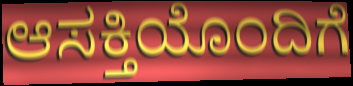
ಆಸಕ್ತಿಯೊಂದಿಗೆ